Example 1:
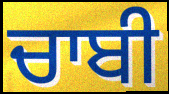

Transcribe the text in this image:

ਚਾਬੀ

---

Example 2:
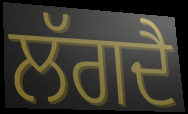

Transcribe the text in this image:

ਲੱਗਦੈ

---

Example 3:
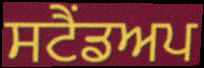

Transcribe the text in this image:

ਸਟੈਂਡਅਪ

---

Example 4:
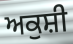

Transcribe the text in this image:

ਅਕੁਸ਼ੀ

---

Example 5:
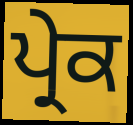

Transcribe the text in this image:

ਪ੍ਰੇਕ